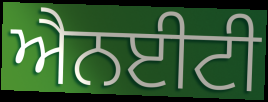
ਐਨਈਟੀ